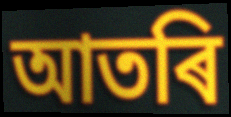
আতৰি